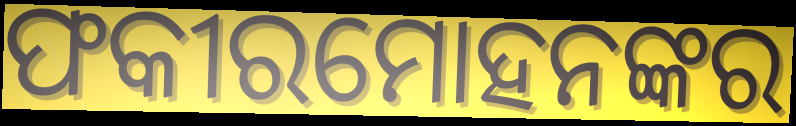
ଫକୀରମୋହନଙ୍କର